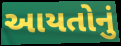
આયતોનું